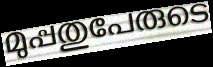
മുപ്പതുപേരുടെ